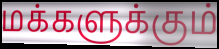
மக்களுக்கும்